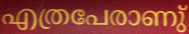
എത്രപേരാണു്